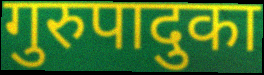
गुरुपादुका